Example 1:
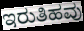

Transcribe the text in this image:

ಇರುತಿಹವು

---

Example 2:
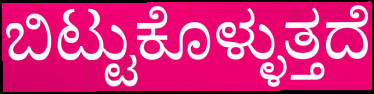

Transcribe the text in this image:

ಬಿಟ್ಟುಕೊಳ್ಳುತ್ತದೆ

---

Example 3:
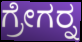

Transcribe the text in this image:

ಗ್ರೇಗರ್‍ನ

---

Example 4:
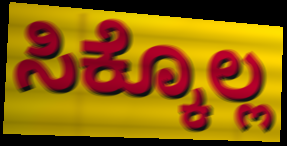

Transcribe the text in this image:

ಸಿಕ್ಕೊಲ್ಲ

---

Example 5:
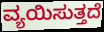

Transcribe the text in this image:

ವ್ಯಯಿಸುತ್ತದೆ